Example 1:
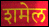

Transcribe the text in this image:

शमेल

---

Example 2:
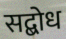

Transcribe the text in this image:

सद्बोध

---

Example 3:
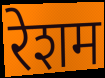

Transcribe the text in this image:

रेशम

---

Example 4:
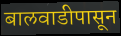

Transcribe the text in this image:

बालवाडीपासून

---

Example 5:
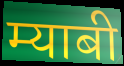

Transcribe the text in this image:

म्याबी